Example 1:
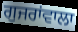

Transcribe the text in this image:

ਗੁਜਰਾਂਵਾਲਾ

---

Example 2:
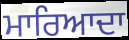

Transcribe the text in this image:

ਮਾਰਿਆਦਾ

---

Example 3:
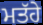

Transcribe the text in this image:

ਮਤੱਹੇ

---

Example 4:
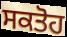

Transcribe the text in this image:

ਸਕਤੋਹ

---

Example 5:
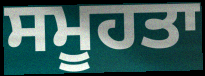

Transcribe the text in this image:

ਸਮੂਹਤਾ